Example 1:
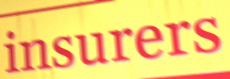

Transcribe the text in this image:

insurers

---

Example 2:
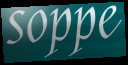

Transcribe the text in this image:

soppe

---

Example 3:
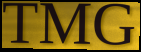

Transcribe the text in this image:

TMG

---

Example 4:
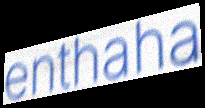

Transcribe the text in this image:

enthaha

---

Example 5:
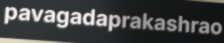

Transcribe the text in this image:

pavagadaprakashrao